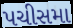
પચીસમા